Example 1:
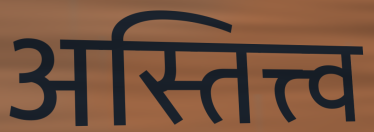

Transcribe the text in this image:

अस्तित्त्व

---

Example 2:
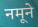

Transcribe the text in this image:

नमूने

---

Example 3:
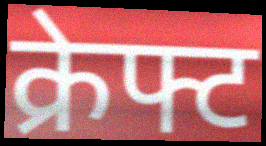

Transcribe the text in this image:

क्रेफ्ट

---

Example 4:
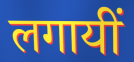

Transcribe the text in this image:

लगायीं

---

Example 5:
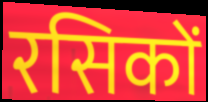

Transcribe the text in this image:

रसिकों